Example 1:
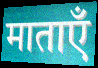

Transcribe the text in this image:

माताएँ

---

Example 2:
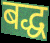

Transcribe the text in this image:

बद्ध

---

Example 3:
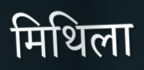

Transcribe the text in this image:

मिथिला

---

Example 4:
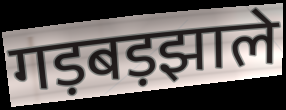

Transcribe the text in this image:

गड़बड़झाले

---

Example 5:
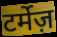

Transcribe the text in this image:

टर्मेज़